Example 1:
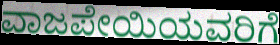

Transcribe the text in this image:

ವಾಜಪೇಯಿಯವರಿಗೆ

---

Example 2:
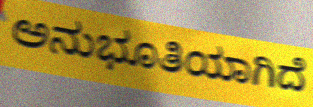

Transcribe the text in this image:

ಅನುಭೂತಿಯಾಗಿದೆ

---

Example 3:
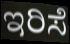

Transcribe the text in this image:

ಇರಿಸೆ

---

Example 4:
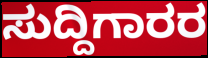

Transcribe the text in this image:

ಸುದ್ದಿಗಾರರ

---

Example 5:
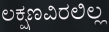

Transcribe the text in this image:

ಲಕ್ಷಣವಿರಲಿಲ್ಲ